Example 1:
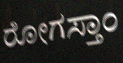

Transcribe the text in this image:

ರೋಗಸ್ತಾಂ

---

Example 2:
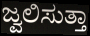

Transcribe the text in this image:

ಜ್ವಲಿಸುತ್ತಾ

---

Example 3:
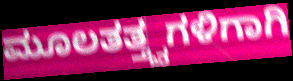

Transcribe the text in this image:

ಮೂಲತತ್ತ್ವಗಳಿಗಾಗಿ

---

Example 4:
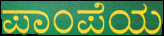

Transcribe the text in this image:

ಪಾಂಪೆಯ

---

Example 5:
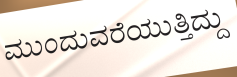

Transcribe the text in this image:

ಮುಂದುವರೆಯುತ್ತಿದ್ದು